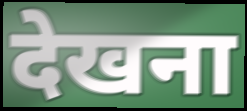
देखना